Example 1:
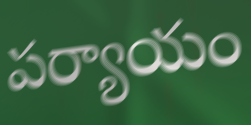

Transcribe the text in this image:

పర్యాయం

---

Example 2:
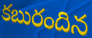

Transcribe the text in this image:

కబురందిన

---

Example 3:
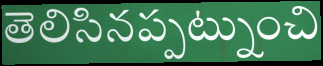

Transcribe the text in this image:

తెలిసినప్పట్నుంచి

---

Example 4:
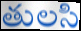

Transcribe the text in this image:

తులసి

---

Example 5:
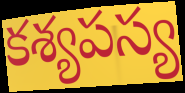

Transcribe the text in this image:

కశ్యపస్య